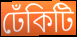
ঢেঁকিটি